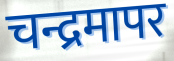
चन्द्रमापर